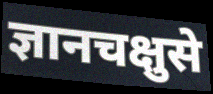
ज्ञानचक्षुसे